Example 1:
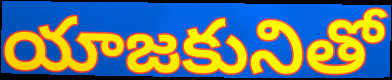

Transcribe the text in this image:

యాజకునితో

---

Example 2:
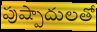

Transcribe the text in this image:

పుష్పాదులతో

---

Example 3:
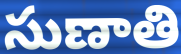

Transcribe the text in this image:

సుణాతి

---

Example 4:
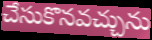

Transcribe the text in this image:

చేసుకొనవచ్చును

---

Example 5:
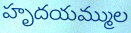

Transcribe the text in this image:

హృదయమ్ముల